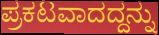
ಪ್ರಕಟವಾದದ್ದನ್ನು